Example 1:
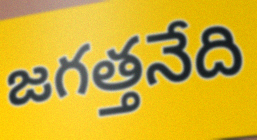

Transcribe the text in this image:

జగత్తనేది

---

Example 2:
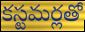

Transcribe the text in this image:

కస్టమర్లతో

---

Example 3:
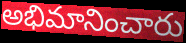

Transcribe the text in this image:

అభిమానించారు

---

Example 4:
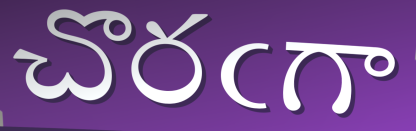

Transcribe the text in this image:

చొరఁగా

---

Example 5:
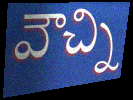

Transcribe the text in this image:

వౌచ్ని